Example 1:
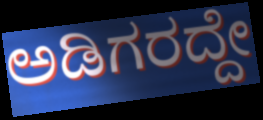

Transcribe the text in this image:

ಅಡಿಗರದ್ದೇ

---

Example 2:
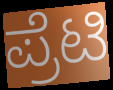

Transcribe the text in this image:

ಪ್ರೆಟಿ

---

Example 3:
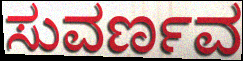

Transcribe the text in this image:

ಸುವರ್ಣವ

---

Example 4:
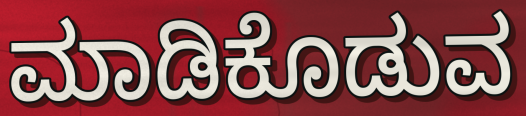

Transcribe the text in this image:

ಮಾಡಿಕೊಡುವ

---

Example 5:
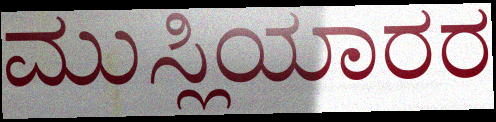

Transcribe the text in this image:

ಮುಸ್ಲಿಯಾರರ